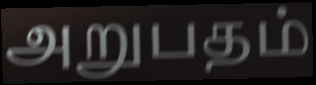
அறுபதம்